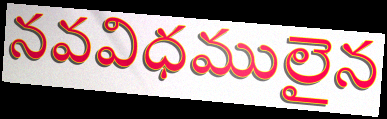
నవవిధములైన